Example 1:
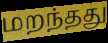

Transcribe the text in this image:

மறந்தது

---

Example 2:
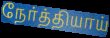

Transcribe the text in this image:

நேர்த்தியாய்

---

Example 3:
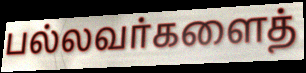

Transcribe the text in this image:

பல்லவர்களைத்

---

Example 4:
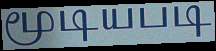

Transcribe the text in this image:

மூடியபடி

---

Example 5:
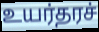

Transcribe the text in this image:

உயர்தரச்